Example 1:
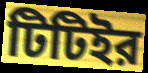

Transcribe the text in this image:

টিটিইর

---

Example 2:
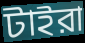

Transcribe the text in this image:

টাইরা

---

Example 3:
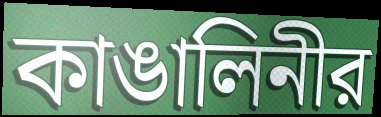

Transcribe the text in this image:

কাঙালিনীর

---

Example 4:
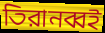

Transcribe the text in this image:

তিরানব্বই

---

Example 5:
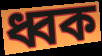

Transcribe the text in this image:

ধ্বক